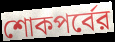
শোকপর্বের